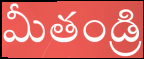
మీతండ్రి